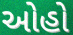
ઓહો